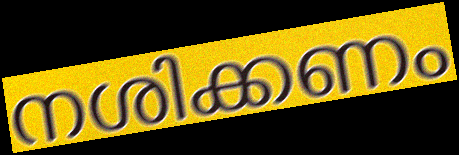
നശിക്കണം